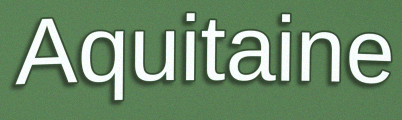
Aquitaine